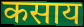
कसाय